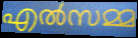
എൽസമ്മ